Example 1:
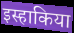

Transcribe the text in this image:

इस्हाकिया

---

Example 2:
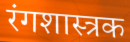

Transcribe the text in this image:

रंगशास्त्रक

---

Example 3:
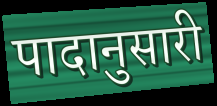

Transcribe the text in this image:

पादानुसारी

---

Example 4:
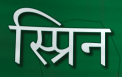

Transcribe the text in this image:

स्प्रिन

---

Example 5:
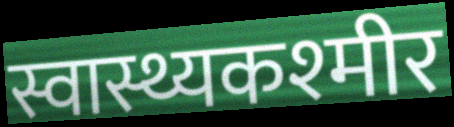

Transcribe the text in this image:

स्वास्थ्यकश्‍मीर